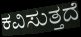
ಕವಿಸುತ್ತದೆ